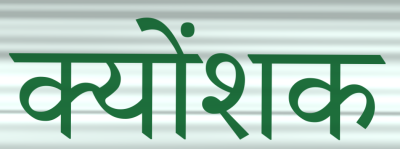
क्योंशक